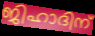
ജിഹാദിന്